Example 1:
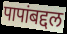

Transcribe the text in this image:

पापांबद्दल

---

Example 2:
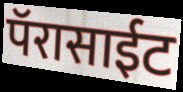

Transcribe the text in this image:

पॅरासाईट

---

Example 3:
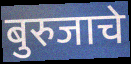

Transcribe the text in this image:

बुरुजाचे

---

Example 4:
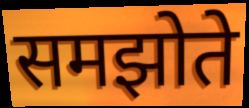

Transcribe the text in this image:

समझोते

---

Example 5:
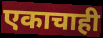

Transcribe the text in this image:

एकाचाही